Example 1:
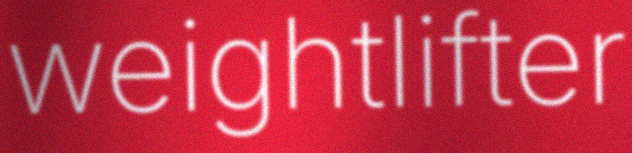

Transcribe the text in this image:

weightlifter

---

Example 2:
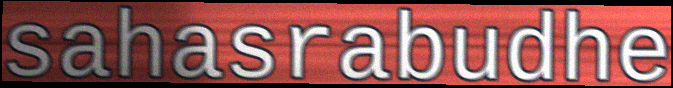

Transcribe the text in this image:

sahasrabudhe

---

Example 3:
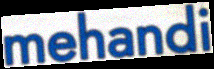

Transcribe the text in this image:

mehandi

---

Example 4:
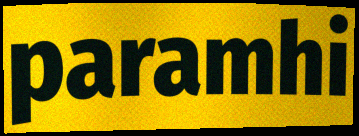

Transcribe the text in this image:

paramhi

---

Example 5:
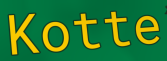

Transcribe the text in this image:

Kotte